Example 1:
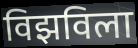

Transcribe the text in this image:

विझविला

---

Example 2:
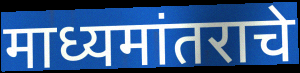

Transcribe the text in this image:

माध्यमांतराचे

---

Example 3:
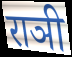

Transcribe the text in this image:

राञी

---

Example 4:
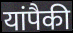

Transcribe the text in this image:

यांपैकी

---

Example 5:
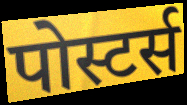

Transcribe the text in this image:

पोस्टर्स